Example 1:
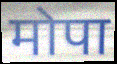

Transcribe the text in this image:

मोपा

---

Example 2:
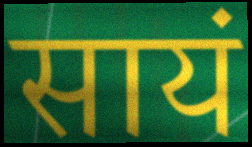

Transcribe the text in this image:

सायं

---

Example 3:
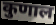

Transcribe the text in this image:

कुणाल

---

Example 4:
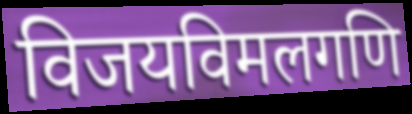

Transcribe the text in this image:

विजयविमलगणि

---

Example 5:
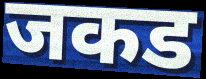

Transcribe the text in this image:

जकड